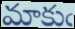
మాకుఁ